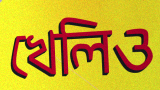
খেলিও